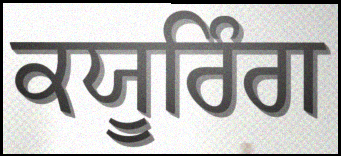
ਕਯੂਰਿੰਗ